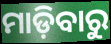
ମାଡ଼ିବାରୁ